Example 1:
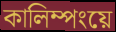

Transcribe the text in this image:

কালিম্পংয়ে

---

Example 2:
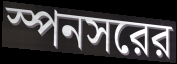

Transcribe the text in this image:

স্পনসরের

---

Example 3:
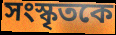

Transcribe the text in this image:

সংস্কৃতকে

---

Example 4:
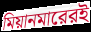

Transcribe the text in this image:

মিয়ানমারেরই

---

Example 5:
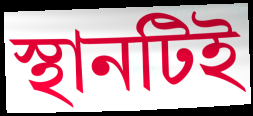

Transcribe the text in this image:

স্থানটিই